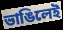
ভাঙিলেই